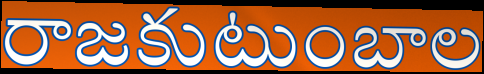
రాజకుటుంబాల